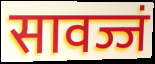
सावज्जं